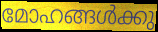
മോഹങ്ങൾക്കു